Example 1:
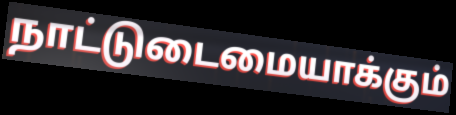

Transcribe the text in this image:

நாட்டுடைமையாக்கும்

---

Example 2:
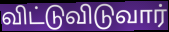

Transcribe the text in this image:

விட்டுவிடுவார்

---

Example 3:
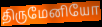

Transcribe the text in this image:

திருமேனியோ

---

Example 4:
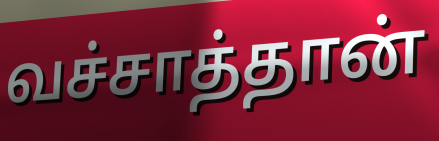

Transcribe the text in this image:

வச்சாத்தான்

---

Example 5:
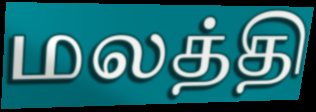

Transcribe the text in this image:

மலத்தி